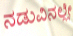
ನಡುವಿನಲ್ಲೇ